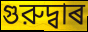
গুৰুদ্বাৰ